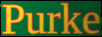
Purke